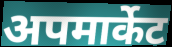
अपमार्केट